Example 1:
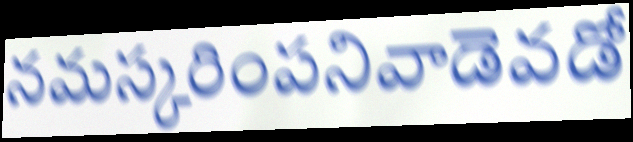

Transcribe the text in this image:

నమస్కరింపనివాడెవడో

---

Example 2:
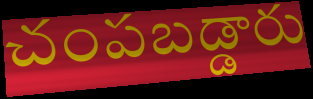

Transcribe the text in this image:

చంపబడ్డారు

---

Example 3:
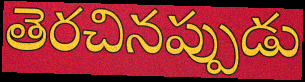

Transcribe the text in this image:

తెరచినప్పుడు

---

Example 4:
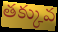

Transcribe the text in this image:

తక్కువ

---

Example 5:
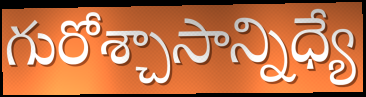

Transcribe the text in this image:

గురోశ్చాసాన్నిధ్యే